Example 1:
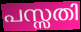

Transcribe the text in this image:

പസ്സതി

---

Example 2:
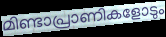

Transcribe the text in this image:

മിണ്ടാപ്രാണികളോടും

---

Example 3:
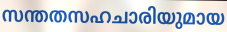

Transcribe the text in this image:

സന്തതസഹചാരിയുമായ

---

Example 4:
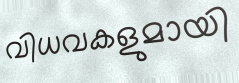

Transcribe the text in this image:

വിധവകളുമായി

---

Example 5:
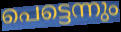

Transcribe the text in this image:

പെട്ടെന്നും